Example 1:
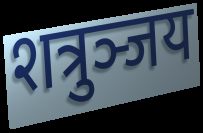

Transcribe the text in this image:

शत्रुञ्जय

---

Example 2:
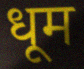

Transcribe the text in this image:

धूम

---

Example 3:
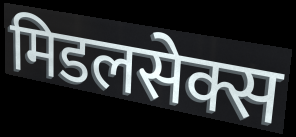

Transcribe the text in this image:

मिडलसेक्स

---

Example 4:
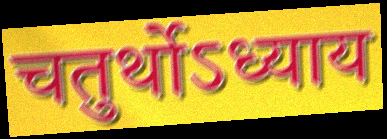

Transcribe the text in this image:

चतुर्थोऽध्याय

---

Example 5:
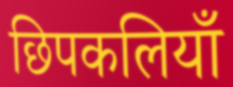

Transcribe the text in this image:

छिपकलियाँ